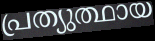
പ്രത്യുത്ഥായ